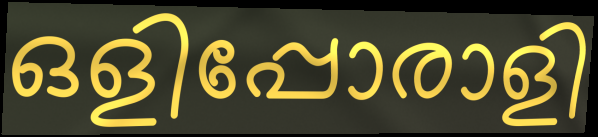
ഒളിപ്പോരാളി